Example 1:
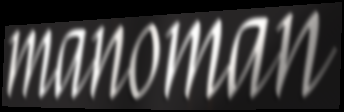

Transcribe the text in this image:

manoman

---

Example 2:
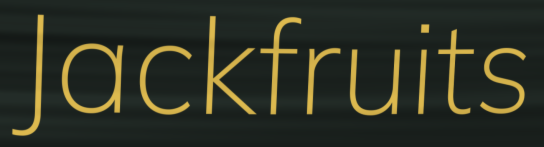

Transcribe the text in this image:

Jackfruits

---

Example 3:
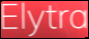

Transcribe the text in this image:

Elytra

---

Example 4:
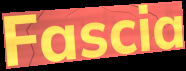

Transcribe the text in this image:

Fascia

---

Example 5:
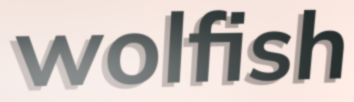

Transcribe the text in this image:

wolfish